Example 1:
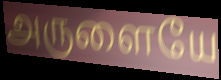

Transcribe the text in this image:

அருளையே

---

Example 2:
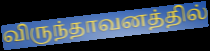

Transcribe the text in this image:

விருந்தாவனத்தில்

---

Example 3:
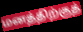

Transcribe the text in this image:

மனத்திற்குத்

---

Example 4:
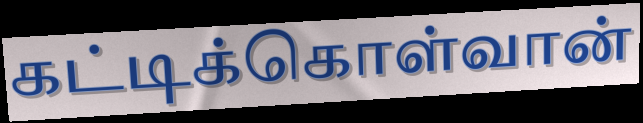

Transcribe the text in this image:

கட்டிக்கொள்வான்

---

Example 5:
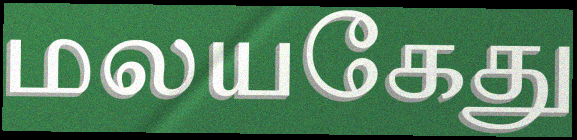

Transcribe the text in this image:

மலயகேது